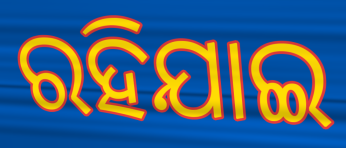
ରହିଯାଇ